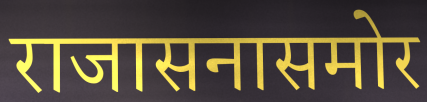
राजासनासमोर